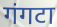
गंगटा